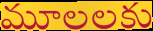
మూలలకు